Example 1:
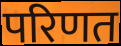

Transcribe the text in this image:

परिणत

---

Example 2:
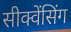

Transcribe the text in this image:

सीक्वेंसिंग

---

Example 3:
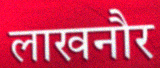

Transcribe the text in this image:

लाखनौर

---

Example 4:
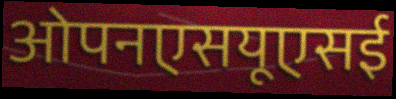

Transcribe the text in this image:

ओपनएसयूएसई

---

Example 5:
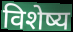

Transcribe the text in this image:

विशेष्य